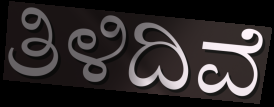
ತಿಳಿದಿವೆ